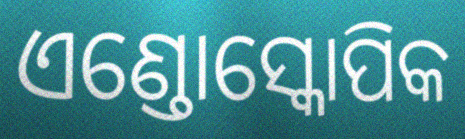
ଏଣ୍ଡୋସ୍କୋପିକ